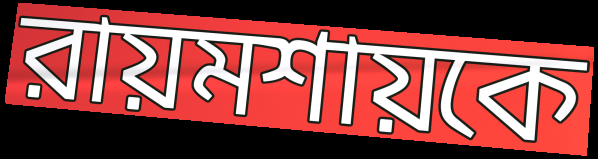
রায়মশায়কে